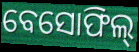
ବେସୋଫିଲ୍